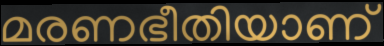
മരണഭീതിയാണ്